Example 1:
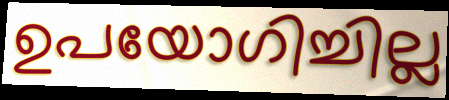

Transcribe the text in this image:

ഉപയോഗിച്ചില്ല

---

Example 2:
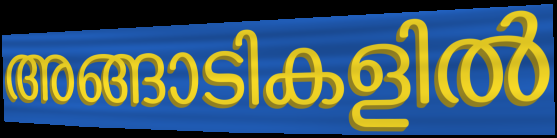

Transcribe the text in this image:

അങ്ങാടികളിൽ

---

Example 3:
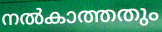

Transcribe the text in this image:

നൽകാത്തതും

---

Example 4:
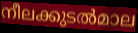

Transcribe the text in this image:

നീലക്കുടൽമാല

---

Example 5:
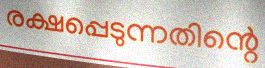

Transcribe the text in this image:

രക്ഷപ്പെടുന്നതിന്റെ